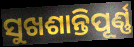
ସୁଖଶାନ୍ତିପୂର୍ଣ୍ଣ